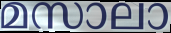
മസാലാ